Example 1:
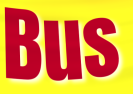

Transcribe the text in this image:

Bus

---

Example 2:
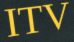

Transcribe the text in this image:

ITV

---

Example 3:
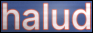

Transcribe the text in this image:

halud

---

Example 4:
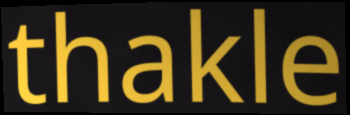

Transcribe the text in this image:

thakle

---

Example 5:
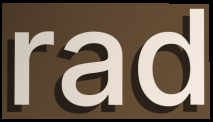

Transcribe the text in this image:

rad